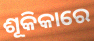
ଶୂକିକାରେ